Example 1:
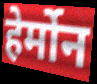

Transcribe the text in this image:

हेर्मोन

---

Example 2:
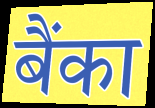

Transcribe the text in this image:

बैंका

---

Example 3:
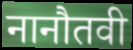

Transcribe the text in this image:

नानौतवी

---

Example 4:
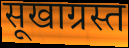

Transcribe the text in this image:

सूखाग्रस्त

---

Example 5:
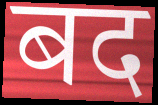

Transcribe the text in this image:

बद